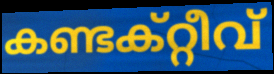
കണ്ടക്റ്റീവ്